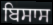
ਬਿਸਾਸ